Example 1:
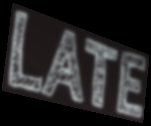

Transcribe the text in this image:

LATE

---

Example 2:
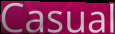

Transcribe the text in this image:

Casual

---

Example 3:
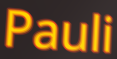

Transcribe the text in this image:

Pauli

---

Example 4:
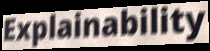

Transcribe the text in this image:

Explainability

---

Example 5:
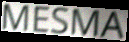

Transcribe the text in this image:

MESMA